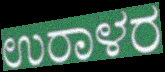
ಉರಾಳರ